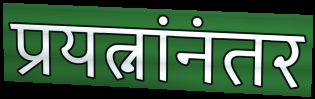
प्रयत्नांनंतर